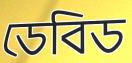
ডেবিড